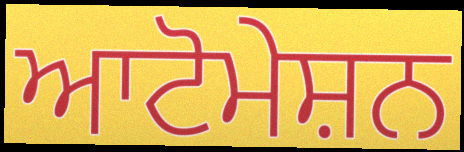
ਆਟੋਮੇਸ਼ਨ